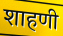
शाहणी